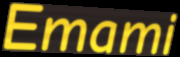
Emami